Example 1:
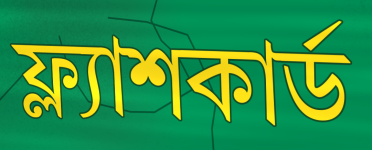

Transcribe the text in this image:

ফ্ল্যাশকার্ড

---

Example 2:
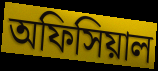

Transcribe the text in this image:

অফিসিয়াল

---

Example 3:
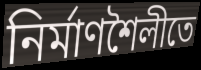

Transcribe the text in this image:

নির্মাণশৈলীতে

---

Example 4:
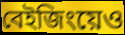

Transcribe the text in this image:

বেইজিংয়েও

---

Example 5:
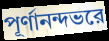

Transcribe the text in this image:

পূর্ণানন্দভরে